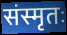
संस्मृतः